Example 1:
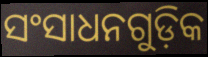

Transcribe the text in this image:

ସଂସାଧନଗୁଡ଼ିକ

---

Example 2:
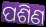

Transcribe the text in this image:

ପଶିଣ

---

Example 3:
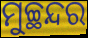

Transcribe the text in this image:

ମୁଚ୍ଛନ୍ଦର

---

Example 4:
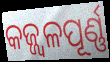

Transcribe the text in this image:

କଜ୍ଜ୍ୱଳପୂର୍ଣ୍ଣ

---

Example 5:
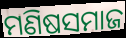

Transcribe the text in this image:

ମଣିଷସମାଜ